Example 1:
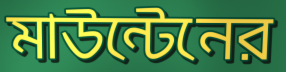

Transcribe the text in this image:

মাউন্টেনের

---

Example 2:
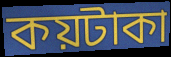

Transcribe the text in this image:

কয়টাকা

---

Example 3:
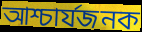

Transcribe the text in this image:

আশ্চার্যজনক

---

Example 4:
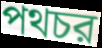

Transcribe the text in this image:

পথচর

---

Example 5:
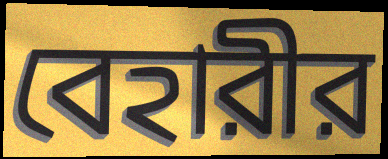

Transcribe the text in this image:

বেহারীর